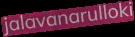
jalavanarulloki